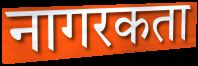
नागरकता